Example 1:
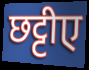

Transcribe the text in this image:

छट्टीए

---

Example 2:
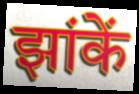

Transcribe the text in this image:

झांकें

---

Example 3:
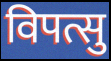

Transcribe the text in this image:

विपत्सु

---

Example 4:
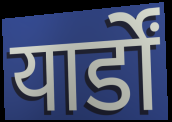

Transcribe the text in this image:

यार्डों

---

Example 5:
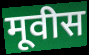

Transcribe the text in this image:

मूवीस